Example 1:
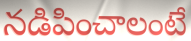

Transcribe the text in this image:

నడిపించాలంటే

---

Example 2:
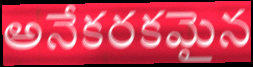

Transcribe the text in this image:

అనేకరకమైన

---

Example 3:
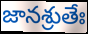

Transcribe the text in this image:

జానశ్రుతేః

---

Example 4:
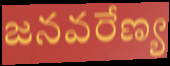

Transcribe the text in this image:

జనవరేణ్య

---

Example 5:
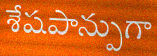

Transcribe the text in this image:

శేషపాన్పుగా